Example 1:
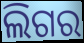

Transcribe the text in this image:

ଲିଗର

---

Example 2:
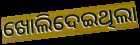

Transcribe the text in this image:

ଖୋଲିଦେଇଥିଲା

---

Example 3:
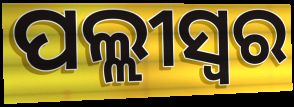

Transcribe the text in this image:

ପଲ୍ଲୀସ୍ଵର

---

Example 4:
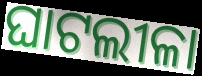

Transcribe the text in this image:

ଘାଟଲୀଳା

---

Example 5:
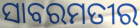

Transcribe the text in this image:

ସାବରମତୀର